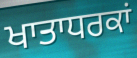
ਖਾਤਾਧਰਕਾਂ